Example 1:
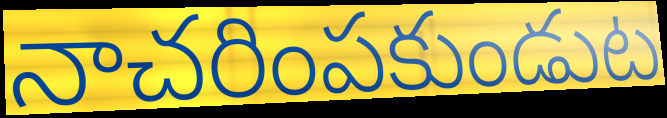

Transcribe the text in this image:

నాచరింపకుండుట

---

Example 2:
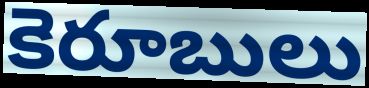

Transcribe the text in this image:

కెరూబులు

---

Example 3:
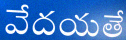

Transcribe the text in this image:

వేదయతే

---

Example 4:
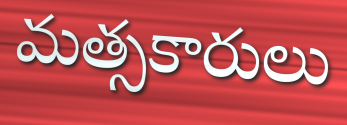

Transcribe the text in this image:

మత్సకారులు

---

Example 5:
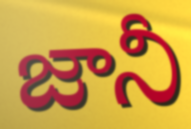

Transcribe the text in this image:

జానీ